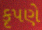
કૃપણે